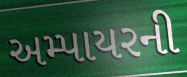
અમ્પાયરની